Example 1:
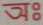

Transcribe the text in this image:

অঃ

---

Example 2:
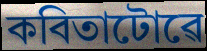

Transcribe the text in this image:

কবিতাটোৱে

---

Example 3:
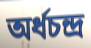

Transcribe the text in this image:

অৰ্ধচন্দ্ৰ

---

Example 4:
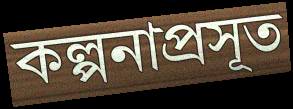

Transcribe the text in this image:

কল্পনাপ্ৰসূত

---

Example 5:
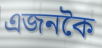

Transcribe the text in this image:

এজনকৈ